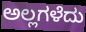
ಅಲ್ಲಗಳೆದು